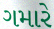
ગમારે